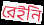
রেইনি